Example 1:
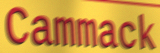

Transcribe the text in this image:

Cammack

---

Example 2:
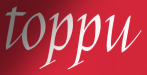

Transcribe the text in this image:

toppu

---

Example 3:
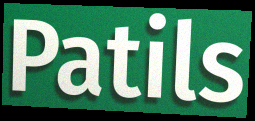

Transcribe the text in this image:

Patils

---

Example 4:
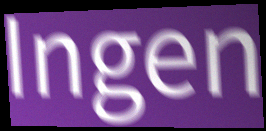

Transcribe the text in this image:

Ingen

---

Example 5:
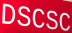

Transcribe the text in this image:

DSCSC